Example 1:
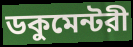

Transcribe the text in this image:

ডকুমেন্টরী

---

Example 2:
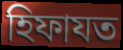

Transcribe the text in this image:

হিফাযত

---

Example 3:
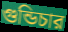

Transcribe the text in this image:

গুন্ডিচার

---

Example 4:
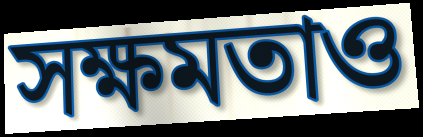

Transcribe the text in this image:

সক্ষমতাও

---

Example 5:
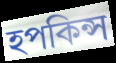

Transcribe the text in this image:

হপকিন্স